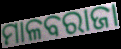
ମାଳବରାଜା